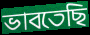
ভাবতেছি